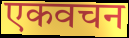
एकवचन